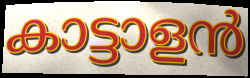
കാട്ടാളൻ